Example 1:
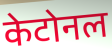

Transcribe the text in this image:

केटोनल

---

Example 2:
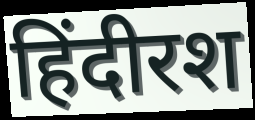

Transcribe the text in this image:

हिंदीरश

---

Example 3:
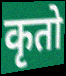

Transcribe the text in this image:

कृतो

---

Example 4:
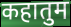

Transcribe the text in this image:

कहातुम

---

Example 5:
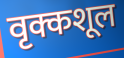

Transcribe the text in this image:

वृक्कशूल